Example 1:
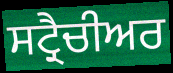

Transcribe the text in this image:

ਸਟ੍ਰੈਚੀਅਰ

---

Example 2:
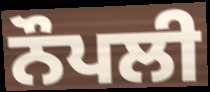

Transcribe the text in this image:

ਨੌਪਲੀ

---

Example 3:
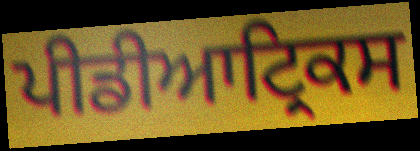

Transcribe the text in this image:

ਪੀਡੀਆਟ੍ਰਿਕਸ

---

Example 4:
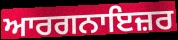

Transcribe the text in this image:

ਆਰਗਨਾਇਜ਼ਰ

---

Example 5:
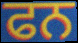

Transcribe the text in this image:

ਫਨ